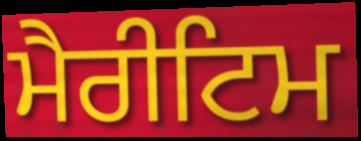
ਮੈਰੀਟਿਮ